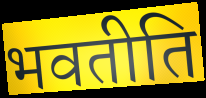
भवतीति